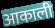
आकाली